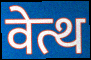
वेत्थ